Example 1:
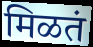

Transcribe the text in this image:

मिळतं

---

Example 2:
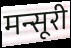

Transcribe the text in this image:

मन्सूरी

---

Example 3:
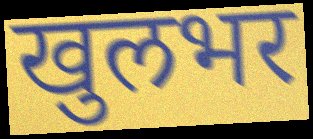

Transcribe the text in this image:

खुलभर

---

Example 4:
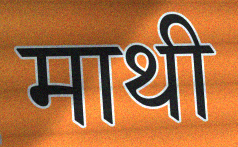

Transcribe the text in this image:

माथी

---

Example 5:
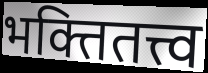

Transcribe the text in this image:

भक्तितत्त्व